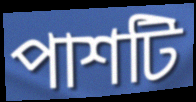
পাশটি